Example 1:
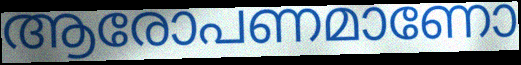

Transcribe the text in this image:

ആരോപണമാണോ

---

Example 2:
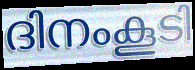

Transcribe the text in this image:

ദിനംകൂടി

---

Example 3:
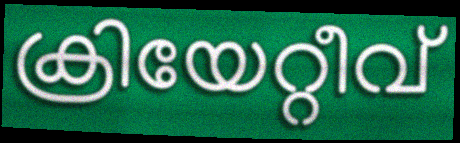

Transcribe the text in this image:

ക്രിയേറ്റീവ്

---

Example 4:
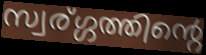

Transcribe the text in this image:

സ്വര്ഗ്ഗത്തിന്റെ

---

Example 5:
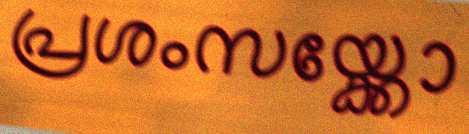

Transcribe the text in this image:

പ്രശംസയ്ക്കോ